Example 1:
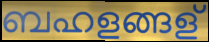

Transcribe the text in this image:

ബഹളങ്ങള്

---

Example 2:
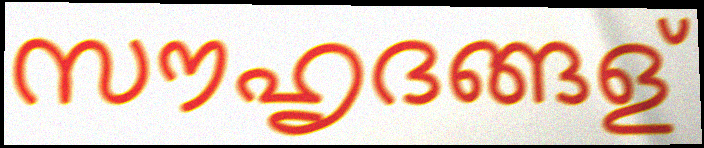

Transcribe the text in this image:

സൗഹൃദങ്ങള്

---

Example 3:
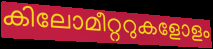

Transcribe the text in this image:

കിലോമീറ്ററുകളോളം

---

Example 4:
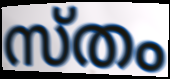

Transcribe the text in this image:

സ്തം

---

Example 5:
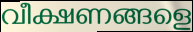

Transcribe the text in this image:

വീക്ഷണങ്ങളെ